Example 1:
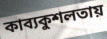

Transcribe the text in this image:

কাব্যকুশলতায়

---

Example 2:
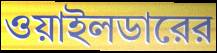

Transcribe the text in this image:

ওয়াইলডারের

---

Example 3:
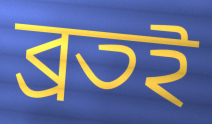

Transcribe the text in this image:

ব্রতই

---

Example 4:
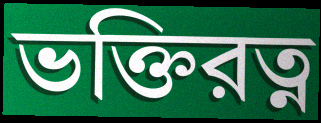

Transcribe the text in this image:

ভক্তিরত্ন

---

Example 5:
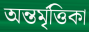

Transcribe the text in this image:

অন্তর্মৃত্তিকা